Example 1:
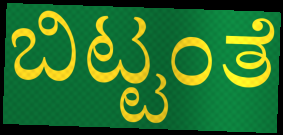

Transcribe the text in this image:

ಬಿಟ್ಟಂತೆ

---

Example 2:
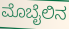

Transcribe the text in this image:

ಮೊಬೈಲಿನ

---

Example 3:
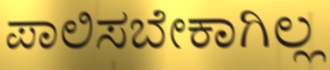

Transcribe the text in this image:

ಪಾಲಿಸಬೇಕಾಗಿಲ್ಲ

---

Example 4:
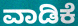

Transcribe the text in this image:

ವಾಡಿಕೆ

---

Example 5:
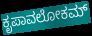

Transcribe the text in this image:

ಕೃಪಾವಲೋಕಮ್